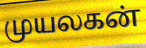
முயலகன்